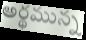
అర్థమున్న